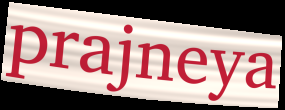
prajneya